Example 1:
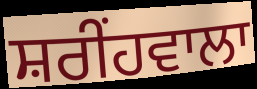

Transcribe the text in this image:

ਸ਼ਰੀਂਹਵਾਲਾ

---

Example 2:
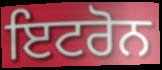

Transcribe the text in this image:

ਇਟਰੋਨ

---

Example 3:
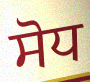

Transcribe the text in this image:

ਸੋਧ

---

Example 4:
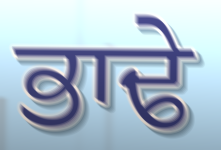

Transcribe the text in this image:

ਭਾਢੇ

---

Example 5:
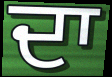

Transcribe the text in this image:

ਦਾ